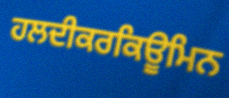
ਹਲਦੀਕਰਕਿਊਮਿਨ